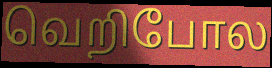
வெறிபோல